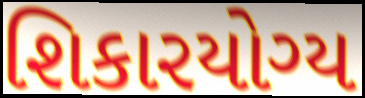
શિકારયોગ્ય